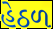
હેઠળ